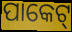
ପାକେଟ୍